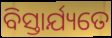
ବିସ୍ତାର୍ଯ୍ୟତେ